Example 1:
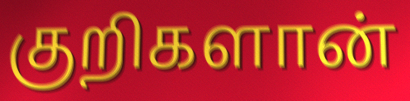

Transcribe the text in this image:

குறிகளான்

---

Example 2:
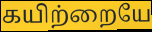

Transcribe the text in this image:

கயிற்றையே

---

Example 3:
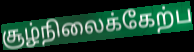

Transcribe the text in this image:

சூழ்நிலைக்கேற்ப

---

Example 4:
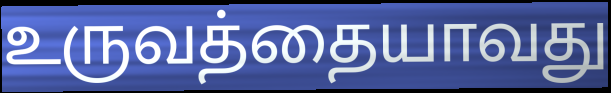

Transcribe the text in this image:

உருவத்தையாவது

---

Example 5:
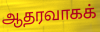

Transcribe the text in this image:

ஆதரவாகக்